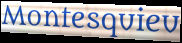
Montesquieu